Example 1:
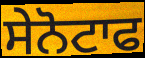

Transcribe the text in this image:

ਸੇਨੋਟਾਫ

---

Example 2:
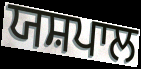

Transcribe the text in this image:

ਯਸ਼ਪਾਲ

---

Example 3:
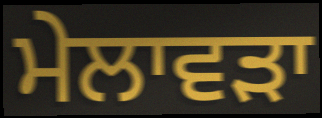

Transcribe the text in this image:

ਮੇਲਾਵੜਾ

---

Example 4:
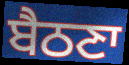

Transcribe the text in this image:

ਬੈਠਣਾ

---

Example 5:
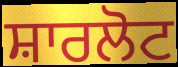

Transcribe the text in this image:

ਸ਼ਾਰਲੋਟ